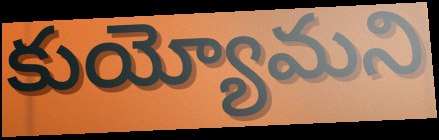
కుయ్యోమని